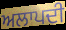
ਅਲਾਪਦੀ